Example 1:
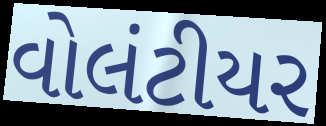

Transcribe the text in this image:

વોલંટીયર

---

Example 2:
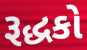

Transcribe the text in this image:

રૂદ્ધકો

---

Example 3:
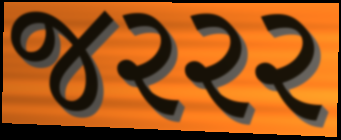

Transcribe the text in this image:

જરરર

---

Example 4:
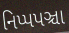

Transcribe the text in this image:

નિપ્પપઞ્ચા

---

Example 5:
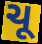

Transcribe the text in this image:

ચૂ